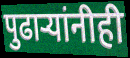
पुढाऱ्यांनीही